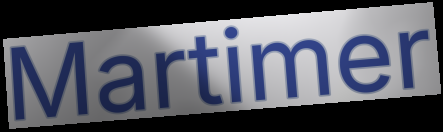
Martimer